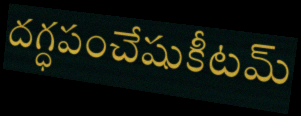
దగ్ధపంచేషుకీటమ్